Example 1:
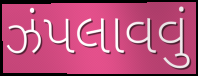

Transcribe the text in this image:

ઝંપલાવવું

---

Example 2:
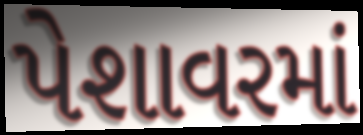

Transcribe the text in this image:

પેશાવરમાં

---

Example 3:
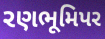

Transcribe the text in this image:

રણભૂમિપર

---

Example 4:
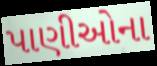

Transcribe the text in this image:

પાણીઓના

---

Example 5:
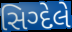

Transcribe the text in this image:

સિગ્દેલે